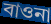
বাওনা